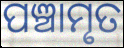
ପଞ୍ଚାମୃତ